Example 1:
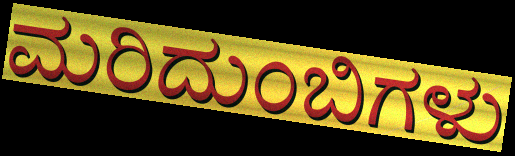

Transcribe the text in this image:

ಮರಿದುಂಬಿಗಳು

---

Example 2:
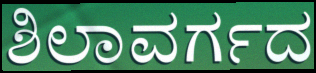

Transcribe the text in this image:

ಶಿಲಾವರ್ಗದ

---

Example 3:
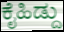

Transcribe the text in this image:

ಕೈಹಿಡ್ದು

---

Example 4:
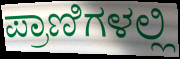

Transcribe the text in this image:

ಪ್ರಾಣಿಗಳಲ್ಲಿ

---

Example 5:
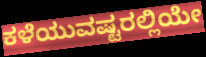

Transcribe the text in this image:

ಕಳೆಯುವಷ್ಟರಲ್ಲಿಯೇ